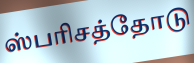
ஸ்பரிசத்தோடு